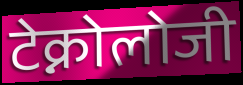
टेक्नोलोजी